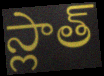
స్లాత్